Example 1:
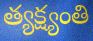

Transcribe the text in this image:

త్యక్ష్యంతి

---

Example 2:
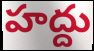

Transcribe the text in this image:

హద్దు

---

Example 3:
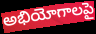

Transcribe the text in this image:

అభియోగాలపై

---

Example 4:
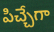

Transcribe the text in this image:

పిచ్చేగా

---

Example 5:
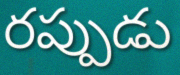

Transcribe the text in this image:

రప్పుడు